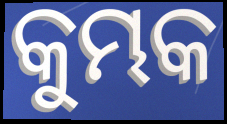
କୁମ୍ଭକ